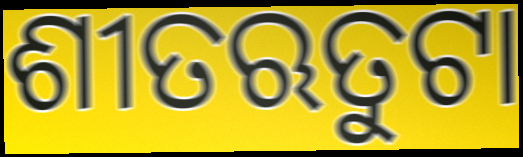
ଶୀତଋତୁଟା